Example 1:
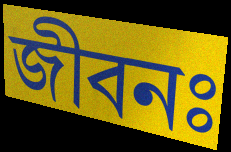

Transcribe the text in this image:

জীবনঃ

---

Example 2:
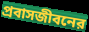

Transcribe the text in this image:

প্রবাসজীবনের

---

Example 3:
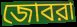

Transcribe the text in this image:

জোবরা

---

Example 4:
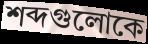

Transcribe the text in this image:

শব্দগুলোকে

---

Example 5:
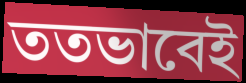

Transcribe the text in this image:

ততভাবেই